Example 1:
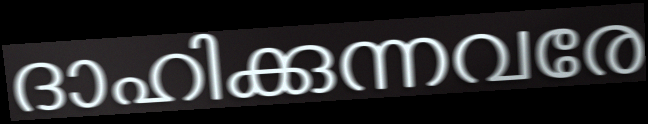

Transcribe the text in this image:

ദാഹിക്കുന്നവരേ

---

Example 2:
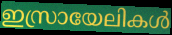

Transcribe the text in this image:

ഇസ്രായേലികൾ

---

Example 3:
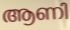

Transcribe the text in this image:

ആണി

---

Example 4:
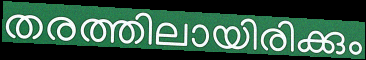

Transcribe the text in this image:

തരത്തിലായിരിക്കും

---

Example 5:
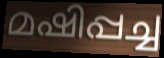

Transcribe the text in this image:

മഷിപ്പച്ച